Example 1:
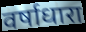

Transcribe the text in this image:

वर्षाधारा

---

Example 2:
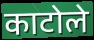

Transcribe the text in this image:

काटोले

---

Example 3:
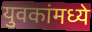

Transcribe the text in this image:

युवकांमध्ये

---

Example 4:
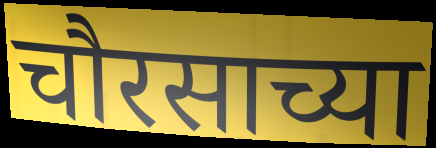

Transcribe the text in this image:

चौरसाच्या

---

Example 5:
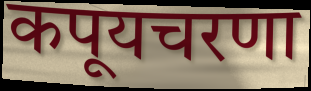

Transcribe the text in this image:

कपूयचरणा